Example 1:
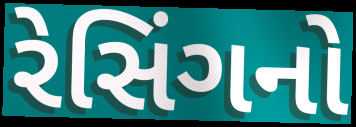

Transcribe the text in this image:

રેસિંગનો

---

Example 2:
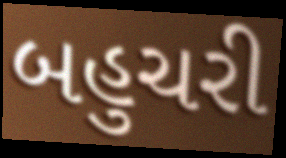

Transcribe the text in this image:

બહુચરી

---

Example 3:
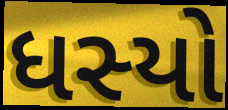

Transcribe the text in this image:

ધસ્યો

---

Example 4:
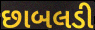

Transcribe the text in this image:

છાબલડી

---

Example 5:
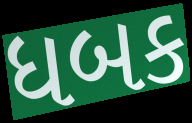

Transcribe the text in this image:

ધબક